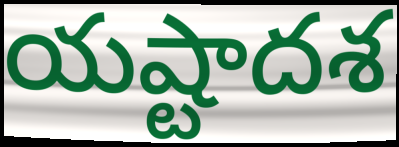
యష్టాదశ